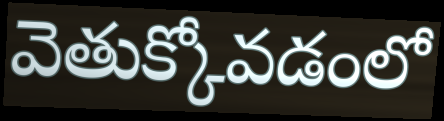
వెతుక్కోవడంలో